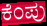
ಕೆಂಪು